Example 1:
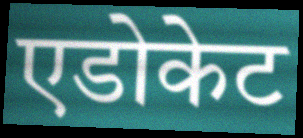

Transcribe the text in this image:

एडोकेट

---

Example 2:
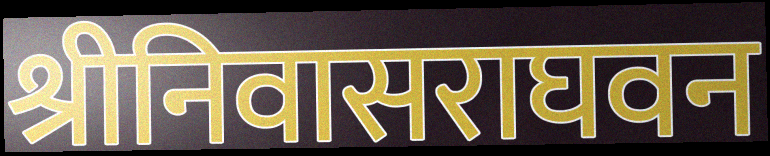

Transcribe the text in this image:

श्रीनिवासराघवन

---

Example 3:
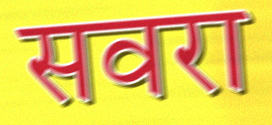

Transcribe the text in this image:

सवरा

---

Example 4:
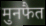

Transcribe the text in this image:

मुनफैत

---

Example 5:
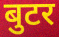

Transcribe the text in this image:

बुटर